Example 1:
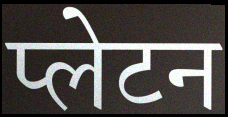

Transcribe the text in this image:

प्लेटन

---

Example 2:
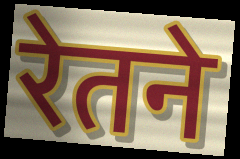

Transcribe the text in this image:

रेतने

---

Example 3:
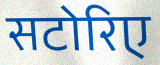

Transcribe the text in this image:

सटोरिए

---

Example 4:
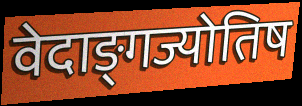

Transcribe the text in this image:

वेदाङ्गज्योतिष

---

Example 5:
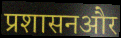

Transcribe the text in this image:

प्रशासनऔर